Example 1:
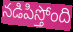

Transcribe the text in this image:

నడిపిస్తోంది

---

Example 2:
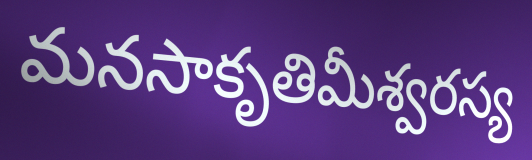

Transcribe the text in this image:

మనసాకృతిమీశ్వరస్య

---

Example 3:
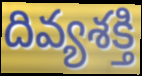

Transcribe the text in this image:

దివ్యశక్తి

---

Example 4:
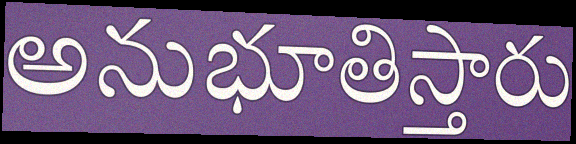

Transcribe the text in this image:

అనుభూతిస్తారు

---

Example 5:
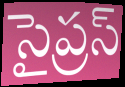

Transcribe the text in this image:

సైప్రస్